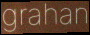
grahan